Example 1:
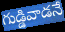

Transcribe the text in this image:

గుడ్డివాడనే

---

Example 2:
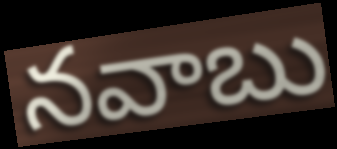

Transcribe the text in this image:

నవాబు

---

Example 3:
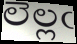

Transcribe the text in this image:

లెల్లఁ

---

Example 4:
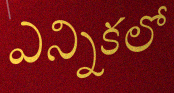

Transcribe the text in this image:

ఎన్నికలో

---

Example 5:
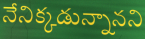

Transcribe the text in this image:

నేనిక్కడున్నానని